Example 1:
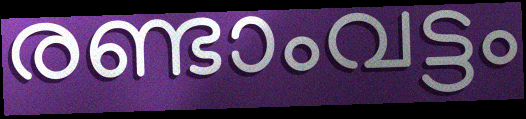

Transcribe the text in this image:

രണ്ടാംവട്ടം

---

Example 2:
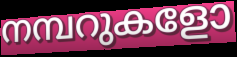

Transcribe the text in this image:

നമ്പറുകളോ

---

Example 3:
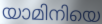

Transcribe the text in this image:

യാമിനിയെ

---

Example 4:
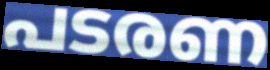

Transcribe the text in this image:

പടരണ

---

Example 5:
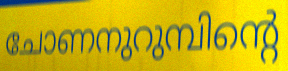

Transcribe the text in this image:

ചോണനുറുമ്പിന്റെ